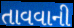
તાવવાની